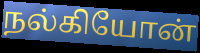
நல்கியோன்